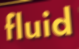
fluid